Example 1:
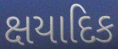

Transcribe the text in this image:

ક્ષયાદિક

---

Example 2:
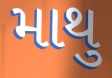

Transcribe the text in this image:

માથુ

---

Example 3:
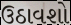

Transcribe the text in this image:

ઉઠાવશો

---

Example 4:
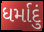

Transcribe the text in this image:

ધર્માદું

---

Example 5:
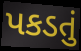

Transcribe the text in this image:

પકડતું